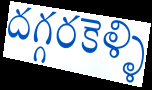
దగ్గరకెళ్ళి